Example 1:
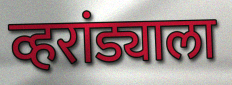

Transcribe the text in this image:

व्हरांड्याला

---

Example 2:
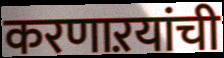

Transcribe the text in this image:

करणाऱयांची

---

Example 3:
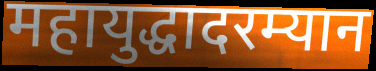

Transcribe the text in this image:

महायुद्धादरम्यान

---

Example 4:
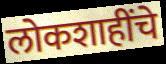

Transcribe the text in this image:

लोकशाहींचे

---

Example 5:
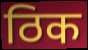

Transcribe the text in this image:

ठिक